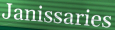
Janissaries